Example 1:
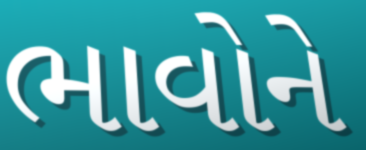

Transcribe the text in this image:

ભાવોને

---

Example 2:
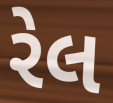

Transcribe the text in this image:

રેલ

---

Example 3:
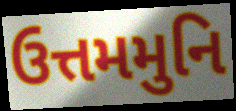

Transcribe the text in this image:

ઉત્તમમુનિ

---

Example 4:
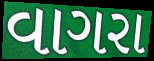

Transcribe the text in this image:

વાગરા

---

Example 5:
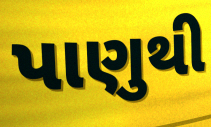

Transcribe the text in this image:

પાણુથી